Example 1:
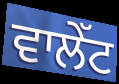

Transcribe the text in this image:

ਵਾਲੇੱਟ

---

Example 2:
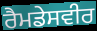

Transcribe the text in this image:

ਰੈਮਡੇਸਵੀਰ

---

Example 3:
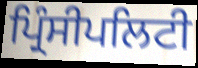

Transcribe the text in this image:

ਪ੍ਰਿੰਸੀਪਲਿਟੀ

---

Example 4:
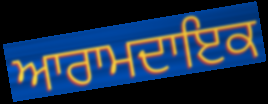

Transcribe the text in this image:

ਆਰਾਮਦਾਇਕ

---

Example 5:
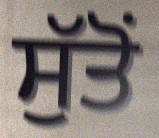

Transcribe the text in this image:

ਸੁੱਤੋਂ